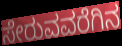
ಸೇರುವವರೆಗಿನ